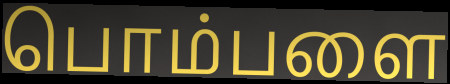
பொம்பளை